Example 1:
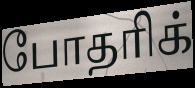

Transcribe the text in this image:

போதரிக்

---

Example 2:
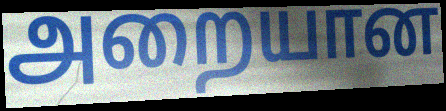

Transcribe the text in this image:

அறையான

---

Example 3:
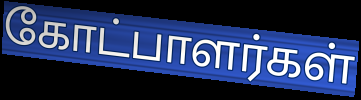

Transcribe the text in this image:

கோட்பாளர்கள்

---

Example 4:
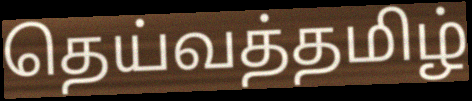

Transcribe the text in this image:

தெய்வத்தமிழ்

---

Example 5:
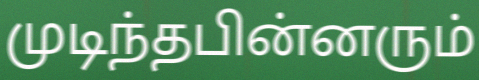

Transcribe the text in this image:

முடிந்தபின்னரும்